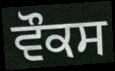
ਵੌਕਸ